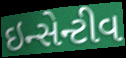
ઇન્સેન્ટીવ